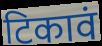
टिकावं